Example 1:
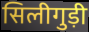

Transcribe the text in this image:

सिलीगुड़ी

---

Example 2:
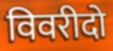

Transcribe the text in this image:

विवरीदो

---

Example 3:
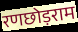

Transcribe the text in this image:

रणछोड़राम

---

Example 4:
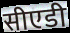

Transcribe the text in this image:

सीएडी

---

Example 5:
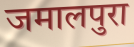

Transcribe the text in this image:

जमालपुरा